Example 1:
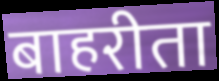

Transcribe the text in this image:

बाहरीता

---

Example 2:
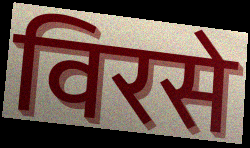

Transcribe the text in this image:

विरसे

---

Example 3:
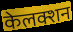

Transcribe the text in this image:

केलक्शन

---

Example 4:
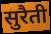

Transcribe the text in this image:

सुरैती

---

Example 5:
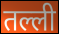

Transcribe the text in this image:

तल्ली